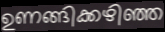
ഉണങ്ങിക്കഴിഞ്ഞ